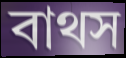
বাথস